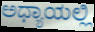
ಅಧ್ಯಾಯಲ್ಲಿ